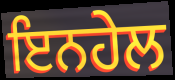
ਇਨਹੇਲ